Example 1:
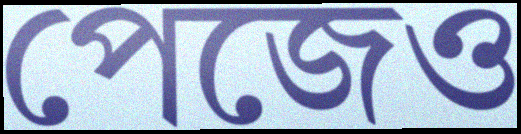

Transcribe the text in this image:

পেজেও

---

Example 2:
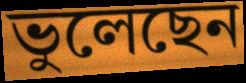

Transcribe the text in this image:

ভুলেছেন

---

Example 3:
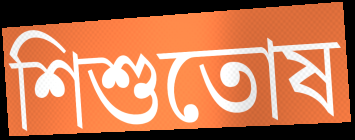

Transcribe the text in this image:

শিশুতোষ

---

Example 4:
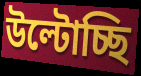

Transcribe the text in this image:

উল্টোচ্ছি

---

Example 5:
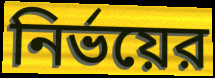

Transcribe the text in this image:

নির্ভয়ের